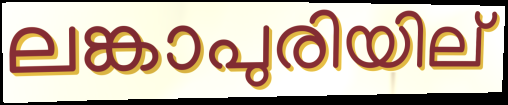
ലങ്കാപുരിയില്